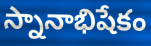
స్నానాభిషేకం